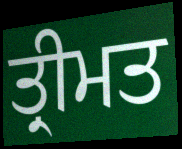
ਤ੍ਰੀਮਤ